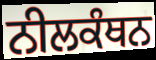
ਨੀਲਕੰਥਨ